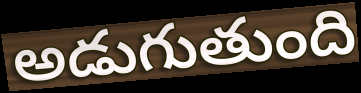
అడుగుతుంది